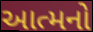
આત્મનો